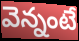
వెన్నంటే